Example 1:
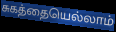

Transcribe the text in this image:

சுகத்தையெல்லாம்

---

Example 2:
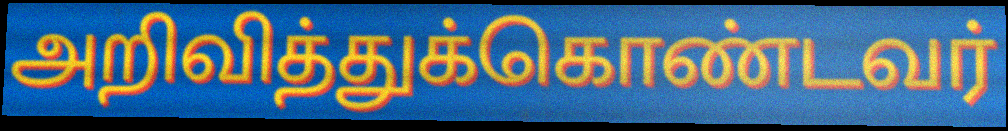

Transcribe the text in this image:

அறிவித்துக்கொண்டவர்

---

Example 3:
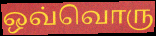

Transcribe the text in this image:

ஒவ்வொரு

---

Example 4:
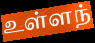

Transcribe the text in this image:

உள்ளந்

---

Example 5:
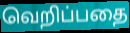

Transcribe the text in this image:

வெறிப்பதை